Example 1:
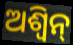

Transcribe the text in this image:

ଅଶ୍ବିନ୍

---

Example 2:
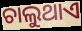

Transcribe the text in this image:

ଚାଲୁଥାଏ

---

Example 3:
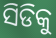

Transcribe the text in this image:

ସିଡିକୁ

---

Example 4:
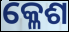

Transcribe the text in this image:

କ୍ଳେଶ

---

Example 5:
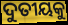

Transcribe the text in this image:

ଦୁତୀୟକୁ